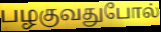
பழகுவதுபோல்